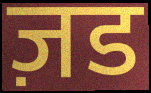
ज़ड